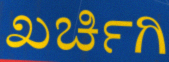
ಖರ್ಚಿಗಿ